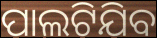
ପାଲଟିଯିବ